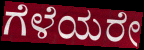
ಗೆಳೆಯರೇ